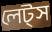
লেট্‌স